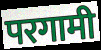
परगामी